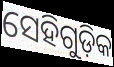
ସେହିଗୁଡ଼ିକ